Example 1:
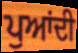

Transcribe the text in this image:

ਪੁਆਂਦੀ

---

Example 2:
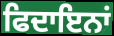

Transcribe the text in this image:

ਫਿਦਾਇਨਾਂ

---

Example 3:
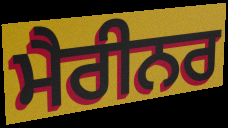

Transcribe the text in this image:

ਮੈਰੀਨਰ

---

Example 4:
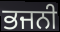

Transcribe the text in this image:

ਭਜਨੀ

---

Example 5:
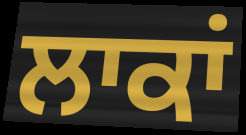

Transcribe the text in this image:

ਲਾਕਾਂ